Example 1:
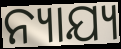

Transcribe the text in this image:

ନ୍ୟାଯ୍ୟ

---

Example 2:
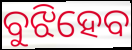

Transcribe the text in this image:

ବୁଝିହେବ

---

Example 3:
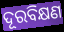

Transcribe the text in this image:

ଦୂରବିକ୍ଷଣ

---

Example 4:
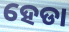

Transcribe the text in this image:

ହେଡା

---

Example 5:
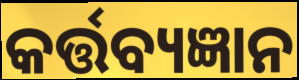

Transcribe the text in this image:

କର୍ତ୍ତବ୍ୟଜ୍ଞାନ